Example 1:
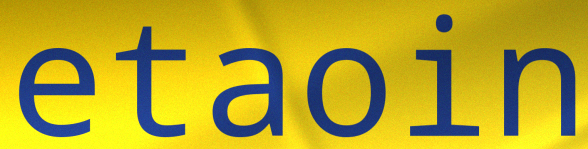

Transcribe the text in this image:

etaoin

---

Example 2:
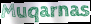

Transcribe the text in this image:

Muqarnas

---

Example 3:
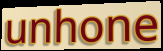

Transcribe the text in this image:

unhone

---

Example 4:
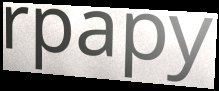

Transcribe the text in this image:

rpapy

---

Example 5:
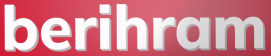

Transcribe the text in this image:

berihram